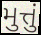
મુત્તું